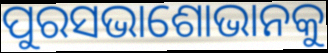
ପୁରସଭାଶୋଭାନକୁ